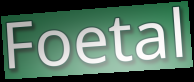
Foetal